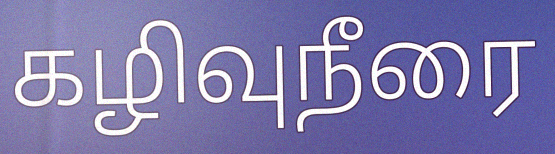
கழிவுநீரை